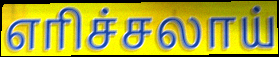
எரிச்சலாய்